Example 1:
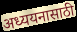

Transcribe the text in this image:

अध्ययनासाठी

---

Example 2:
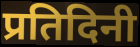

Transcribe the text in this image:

प्रतिदिनी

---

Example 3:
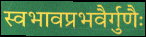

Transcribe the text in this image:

स्वभावप्रभवैर्गुणैः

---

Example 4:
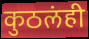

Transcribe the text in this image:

कुठलंही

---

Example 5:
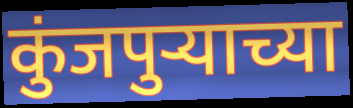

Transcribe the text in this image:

कुंजपुऱ्याच्या